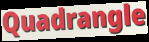
Quadrangle